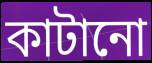
কাটানো